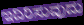
ಇದಿರಿಸುವುದು